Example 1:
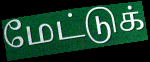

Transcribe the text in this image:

மேட்டுக்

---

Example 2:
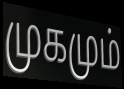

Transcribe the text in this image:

முகமும்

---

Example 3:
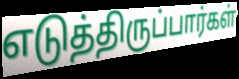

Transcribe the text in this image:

எடுத்திருப்பார்கள்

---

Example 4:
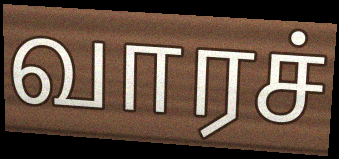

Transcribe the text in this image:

வாரச்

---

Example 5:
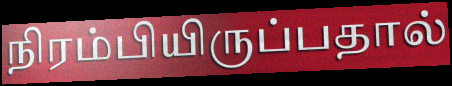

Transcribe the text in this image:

நிரம்பியிருப்பதால்